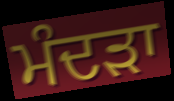
ਮੰਦੜਾ